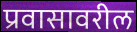
प्रवासावरील